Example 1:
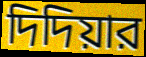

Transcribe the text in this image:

দিদিয়ার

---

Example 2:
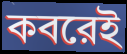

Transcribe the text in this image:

কবরেই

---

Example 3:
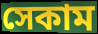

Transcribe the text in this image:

সেকাম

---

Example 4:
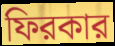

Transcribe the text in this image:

ফিরকার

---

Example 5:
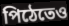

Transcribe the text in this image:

পিঠেতেও